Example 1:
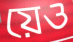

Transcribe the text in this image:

য়েও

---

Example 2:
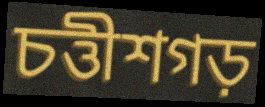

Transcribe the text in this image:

চত্তীশগড়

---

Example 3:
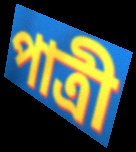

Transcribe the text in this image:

পাত্ৰী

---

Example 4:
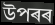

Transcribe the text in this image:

উপৰৰ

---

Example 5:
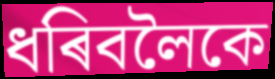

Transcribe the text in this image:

ধৰিবলৈকে